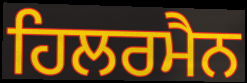
ਹਿਲਰਮੈਨ